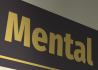
Mental